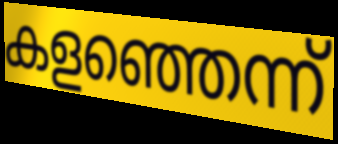
കളഞ്ഞെന്ന്